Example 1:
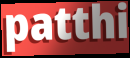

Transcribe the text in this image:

patthi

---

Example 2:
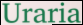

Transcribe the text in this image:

Uraria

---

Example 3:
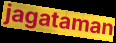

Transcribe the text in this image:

jagataman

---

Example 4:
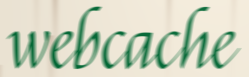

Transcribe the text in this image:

webcache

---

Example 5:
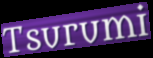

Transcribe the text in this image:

Tsurumi